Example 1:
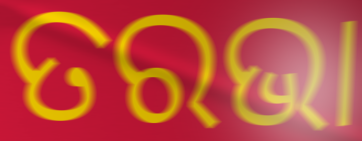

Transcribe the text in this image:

ତରଭା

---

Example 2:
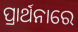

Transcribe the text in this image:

ପ୍ରାର୍ଥନାରେ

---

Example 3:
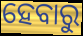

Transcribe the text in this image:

ହେବାରୁ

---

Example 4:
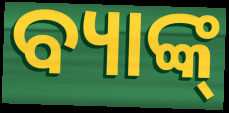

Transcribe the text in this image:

ବ୍ୟାଙ୍କ୍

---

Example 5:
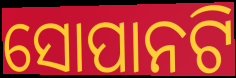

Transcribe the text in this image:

ସୋପାନଟି